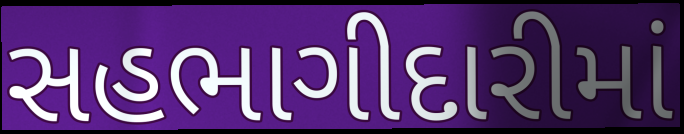
સહભાગીદારીમાં